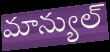
మాన్యుల్